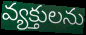
వ్యక్తులను